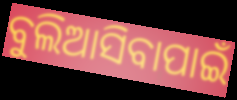
ବୁଲିଆସିବାପାଇଁ